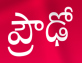
ప్రౌఢో